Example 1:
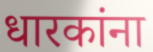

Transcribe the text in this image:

धारकांना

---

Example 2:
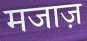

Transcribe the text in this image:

मजाज़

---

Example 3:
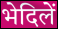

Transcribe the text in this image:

भेदिलें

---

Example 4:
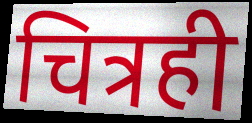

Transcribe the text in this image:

चित्रही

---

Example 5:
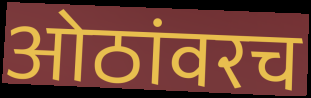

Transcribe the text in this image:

ओठांवरच